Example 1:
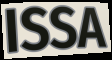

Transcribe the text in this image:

ISSA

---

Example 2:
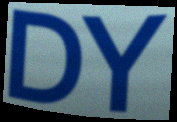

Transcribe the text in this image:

DY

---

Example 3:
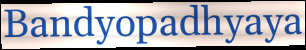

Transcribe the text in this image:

Bandyopadhyaya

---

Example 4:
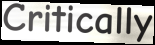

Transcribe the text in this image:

Critically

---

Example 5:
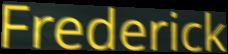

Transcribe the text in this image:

Frederick